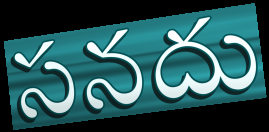
సనదు